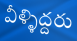
వీళ్ళిద్దరు